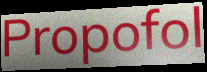
Propofol